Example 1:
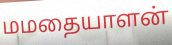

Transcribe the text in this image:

மமதையாளன்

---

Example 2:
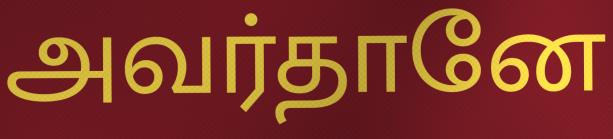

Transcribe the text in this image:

அவர்தானே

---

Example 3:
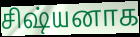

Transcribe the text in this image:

சிஷ்யனாக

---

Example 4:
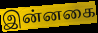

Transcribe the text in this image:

இன்னகை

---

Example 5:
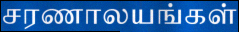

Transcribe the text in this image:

சரணாலயங்கள்